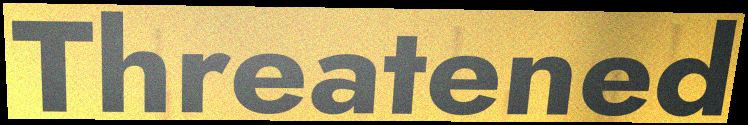
Threatened